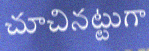
చూచినట్టుగా